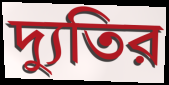
দ্যুতির